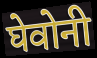
घेवोनी